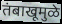
तंबाखूमुळे